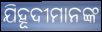
ଯିହୂଦୀମାନଙ୍କ